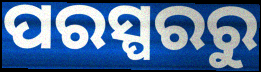
ପରସ୍ପରରୁ